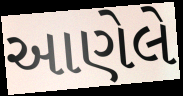
આણેલે